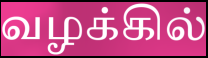
வழக்கில்